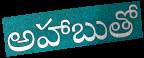
అహాబుతో